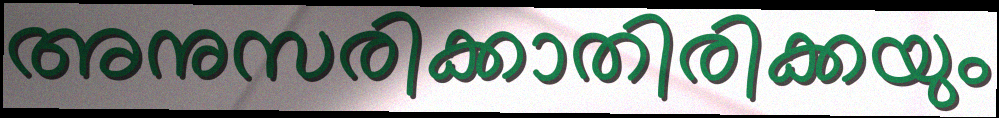
അനുസരിക്കാതിരിക്കയും